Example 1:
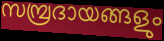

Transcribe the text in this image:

സമ്പ്രദായങ്ങളും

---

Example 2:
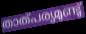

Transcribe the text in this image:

താത്പര്യമുണ്ടു്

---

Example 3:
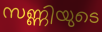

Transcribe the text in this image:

സണ്ണിയുടെ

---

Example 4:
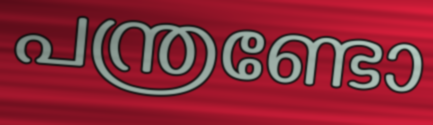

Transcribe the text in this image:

പന്ത്രണ്ടോ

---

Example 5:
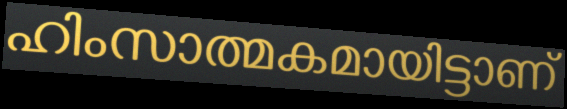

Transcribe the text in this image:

ഹിംസാത്മകമായിട്ടാണ്